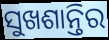
ସୁଖଶାନ୍ତିର